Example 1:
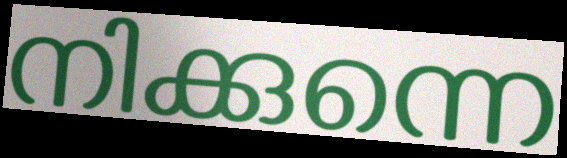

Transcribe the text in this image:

നിക്കുന്നെ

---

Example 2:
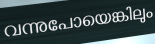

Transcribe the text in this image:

വന്നുപോയെങ്കിലും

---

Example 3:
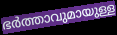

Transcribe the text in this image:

ഭർത്താവുമായുള്ള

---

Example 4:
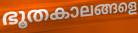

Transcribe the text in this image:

ഭൂതകാലങ്ങളെ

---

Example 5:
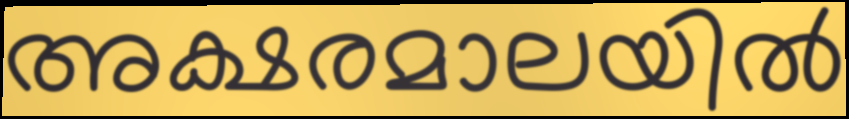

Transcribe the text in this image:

അക്ഷരമാലയിൽ